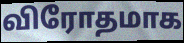
விரோதமாக